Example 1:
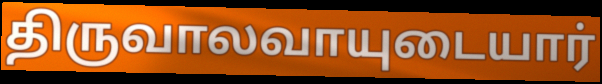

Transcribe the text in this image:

திருவாலவாயுடையார்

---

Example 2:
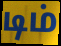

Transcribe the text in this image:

டிம்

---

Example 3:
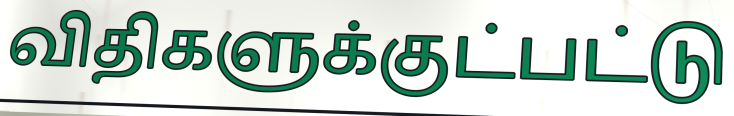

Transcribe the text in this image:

விதிகளுக்குட்பட்டு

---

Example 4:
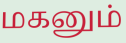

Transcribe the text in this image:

மகனும்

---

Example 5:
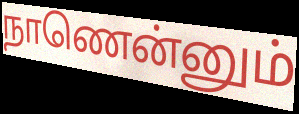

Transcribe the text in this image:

நாணென்னும்